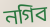
নগিব